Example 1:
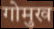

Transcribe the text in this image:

गोमुख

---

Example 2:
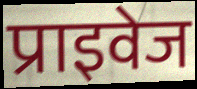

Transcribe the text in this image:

प्राइवेज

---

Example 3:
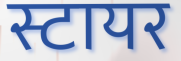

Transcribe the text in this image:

स्टायर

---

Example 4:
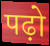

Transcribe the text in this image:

पढ़ो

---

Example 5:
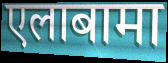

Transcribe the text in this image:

एलाबामा